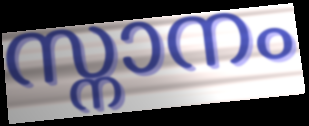
സ്നാനം